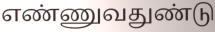
எண்ணுவதுண்டு